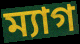
ম্যাগ